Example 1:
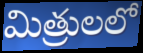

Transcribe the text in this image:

మిత్రులలో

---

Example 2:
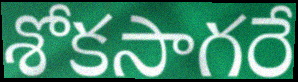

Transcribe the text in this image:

శోకసాగరే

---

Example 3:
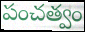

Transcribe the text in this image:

పంచత్వం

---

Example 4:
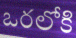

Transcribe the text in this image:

ఒరలోకి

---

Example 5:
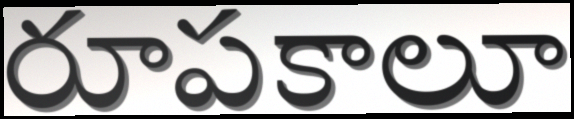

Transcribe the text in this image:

రూపకాలూ